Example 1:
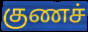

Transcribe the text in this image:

குணச்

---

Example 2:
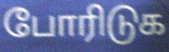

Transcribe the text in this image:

போரிடுக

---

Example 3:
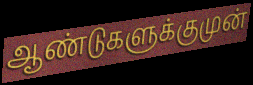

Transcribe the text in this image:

ஆண்டுகளுக்குமுன்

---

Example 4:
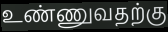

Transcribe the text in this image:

உண்ணுவதற்கு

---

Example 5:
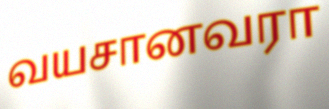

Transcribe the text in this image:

வயசானவரா